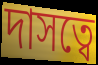
দাসত্বে